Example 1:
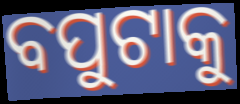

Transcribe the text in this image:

ବପୁଟାକୁ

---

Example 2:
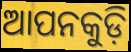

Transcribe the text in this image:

ଆପନକୁଡ଼ି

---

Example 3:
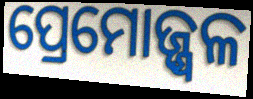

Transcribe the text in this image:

ପ୍ରେମୋଜ୍ଜ୍ୱଳ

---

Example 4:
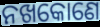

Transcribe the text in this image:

ନଖକୋଣେ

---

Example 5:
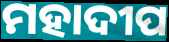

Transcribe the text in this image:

ମହାଦୀପ